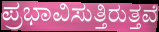
ಪ್ರಭಾವಿಸುತ್ತಿರುತ್ತವೆ